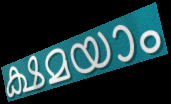
ക്ഷമയാം